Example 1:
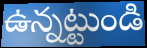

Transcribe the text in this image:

ఉన్నట్టుండి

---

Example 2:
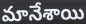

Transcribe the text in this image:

మానేశాయి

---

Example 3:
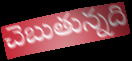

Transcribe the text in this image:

చెబుతున్నది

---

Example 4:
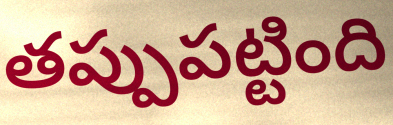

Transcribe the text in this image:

తప్పుపట్టింది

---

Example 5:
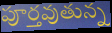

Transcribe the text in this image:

పూర్తవుతున్న